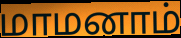
மாமனாம்